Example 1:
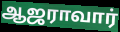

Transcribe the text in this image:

ஆஜராவார்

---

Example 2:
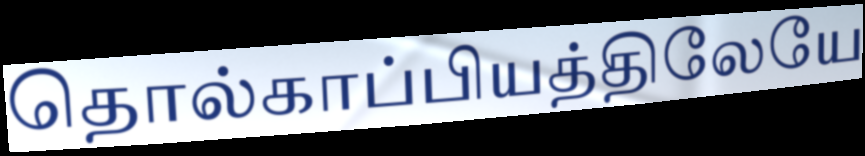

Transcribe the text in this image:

தொல்காப்பியத்திலேயே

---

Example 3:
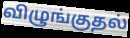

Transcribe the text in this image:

விழுங்குதல்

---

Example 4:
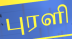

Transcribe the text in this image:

புரளி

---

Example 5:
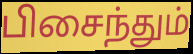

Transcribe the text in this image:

பிசைந்தும்